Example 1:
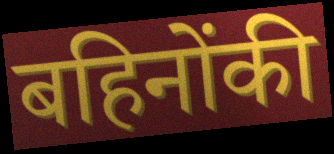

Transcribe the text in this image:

बहिनोंकी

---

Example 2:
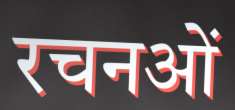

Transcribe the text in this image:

रचनओं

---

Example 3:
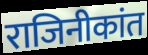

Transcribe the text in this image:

राजिनीकांत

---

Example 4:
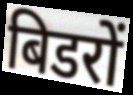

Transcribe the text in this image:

बिडरों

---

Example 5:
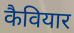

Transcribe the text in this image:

कैवियार